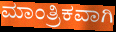
ಮಾಂತ್ರಿಕವಾಗಿ